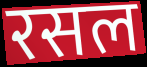
रसल